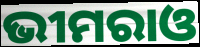
ଭୀମରାଓ